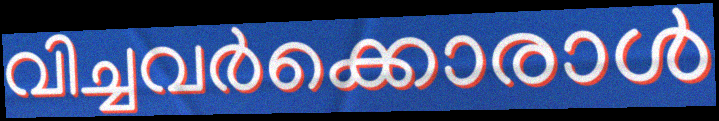
വിച്ചവർക്കൊരാൾ